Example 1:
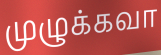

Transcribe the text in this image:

முழுக்கவா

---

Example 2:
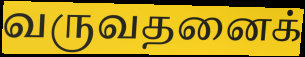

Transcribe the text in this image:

வருவதனைக்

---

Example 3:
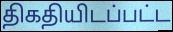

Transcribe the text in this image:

திகதியிடப்பட்ட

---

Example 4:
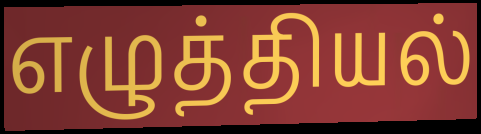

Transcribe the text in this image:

எழுத்தியல்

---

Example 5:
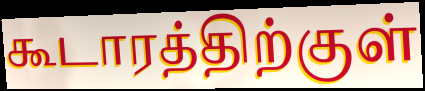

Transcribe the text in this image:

கூடாரத்திற்குள்